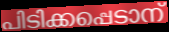
പിടിക്കപ്പെടാന്